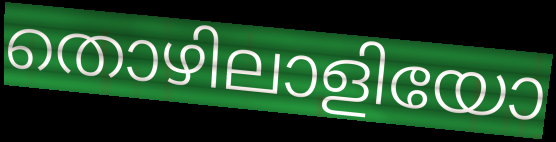
തൊഴിലാളിയോ